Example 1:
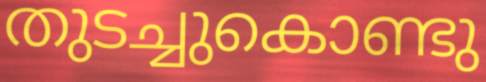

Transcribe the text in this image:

തുടച്ചുകൊണ്ടു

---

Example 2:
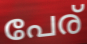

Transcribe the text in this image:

പേര്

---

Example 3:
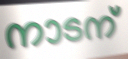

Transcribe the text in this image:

നാടന്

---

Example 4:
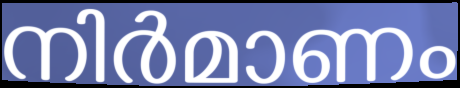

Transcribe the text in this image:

നിർമാണം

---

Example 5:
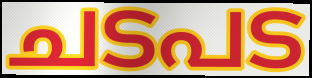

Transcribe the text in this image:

ചടപട